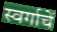
स्वर्गाचें